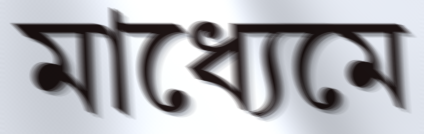
মাধ্যেমে